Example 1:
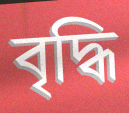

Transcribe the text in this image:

বৃদ্ধি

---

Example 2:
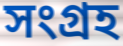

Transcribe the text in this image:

সংগ্রহ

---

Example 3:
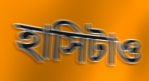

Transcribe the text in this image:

হাসিটাও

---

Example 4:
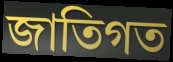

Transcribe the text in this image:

জাতিগত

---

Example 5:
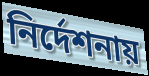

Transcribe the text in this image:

নির্দেশনায়